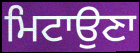
ਮਿਟਾਉਣਾ